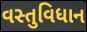
વસ્તુવિધાન